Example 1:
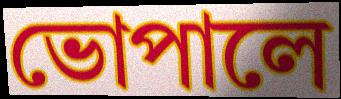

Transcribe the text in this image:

ভোপালে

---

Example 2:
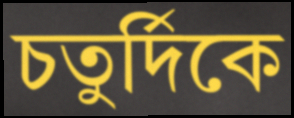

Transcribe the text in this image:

চতুর্দিকে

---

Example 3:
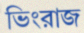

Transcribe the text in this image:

ভিংরাজ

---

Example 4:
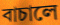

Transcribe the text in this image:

বাচালে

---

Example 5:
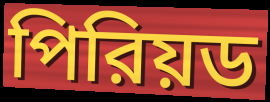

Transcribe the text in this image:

পিরিয়ড